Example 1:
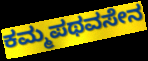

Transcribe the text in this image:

ಕಮ್ಮಪಥವಸೇನ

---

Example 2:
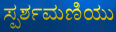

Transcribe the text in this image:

ಸ್ಪರ್ಶಮಣಿಯು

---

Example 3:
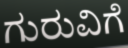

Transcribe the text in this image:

ಗುರುವಿಗೆ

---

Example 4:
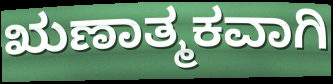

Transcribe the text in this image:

ಋಣಾತ್ಮಕವಾಗಿ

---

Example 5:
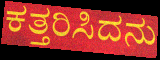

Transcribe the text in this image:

ಕತ್ತರಿಸಿದನು